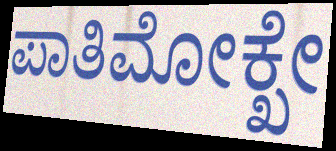
ಪಾತಿಮೋಕ್ಖೇ